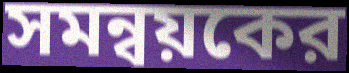
সমন্বয়কের